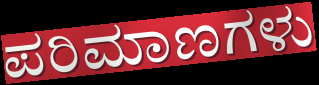
ಪರಿಮಾಣಗಳು